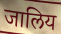
जालिय